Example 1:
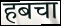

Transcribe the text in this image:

हबचा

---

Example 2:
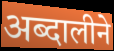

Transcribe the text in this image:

अब्दालीने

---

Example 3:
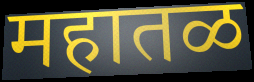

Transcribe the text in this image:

महातळ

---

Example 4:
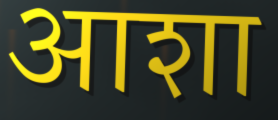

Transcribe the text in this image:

आशा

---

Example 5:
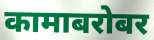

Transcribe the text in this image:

कामाबरोबर